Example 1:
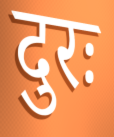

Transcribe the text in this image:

दुरः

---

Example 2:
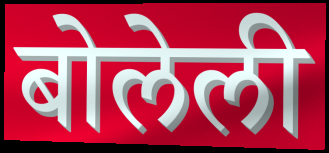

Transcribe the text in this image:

बोलेली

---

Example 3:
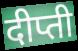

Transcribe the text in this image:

दीप्ती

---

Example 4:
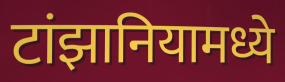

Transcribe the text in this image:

टांझानियामध्ये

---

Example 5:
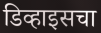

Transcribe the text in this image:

डिव्हाइसचा